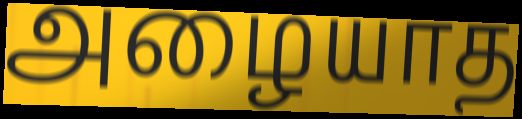
அழையாத